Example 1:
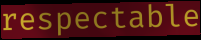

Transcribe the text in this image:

respectable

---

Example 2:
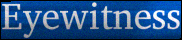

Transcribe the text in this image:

Eyewitness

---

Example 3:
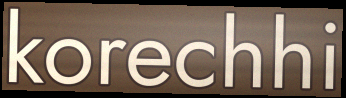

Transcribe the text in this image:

korechhi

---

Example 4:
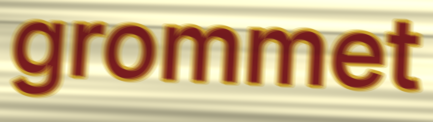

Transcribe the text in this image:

grommet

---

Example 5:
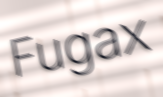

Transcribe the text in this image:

Fugax